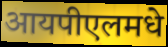
आयपीएलमधे